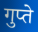
गुप्ते